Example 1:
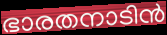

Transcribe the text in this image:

ഭാരതനാടിൻ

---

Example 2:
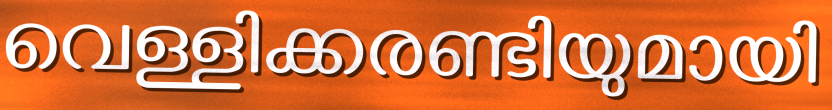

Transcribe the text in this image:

വെള്ളിക്കരണ്ടിയുമായി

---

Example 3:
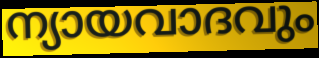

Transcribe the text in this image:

ന്യായവാദവും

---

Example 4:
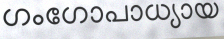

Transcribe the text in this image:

ഗംഗോപാധ്യായ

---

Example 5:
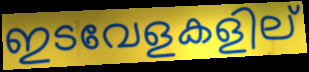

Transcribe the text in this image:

ഇടവേളകളില്